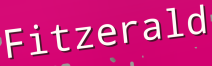
Fitzerald